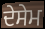
ਦੇਸੇਮ